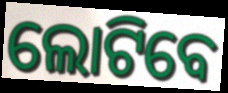
ଲୋଟିବେ